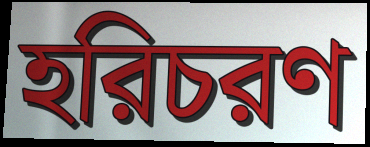
হরিচরণ